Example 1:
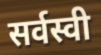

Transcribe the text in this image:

सर्वस्वी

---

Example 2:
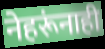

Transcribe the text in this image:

नेहरूंनाही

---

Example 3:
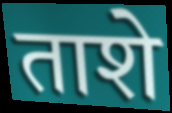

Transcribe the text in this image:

ताशे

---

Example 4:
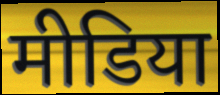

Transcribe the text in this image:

मीडिया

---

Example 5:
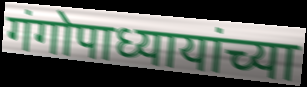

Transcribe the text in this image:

गंगोपाध्यायांच्या